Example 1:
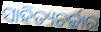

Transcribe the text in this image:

ସାହିତ୍ୟଚର୍ଚ୍ଚାର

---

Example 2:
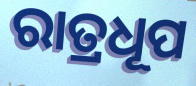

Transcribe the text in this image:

ରାତ୍ରଧୂପ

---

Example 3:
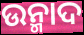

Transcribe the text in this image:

ଉନ୍ମାଦ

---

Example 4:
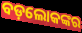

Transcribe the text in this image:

ବଡ଼ଲୋକଙ୍କର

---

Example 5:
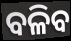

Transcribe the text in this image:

ବଳିବ